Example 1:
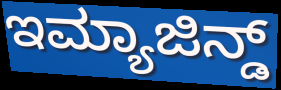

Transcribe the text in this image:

ಇಮ್ಯಾಜಿನ್ಡ್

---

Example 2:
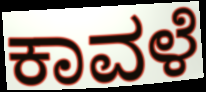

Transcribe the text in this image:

ಕಾವಳೆ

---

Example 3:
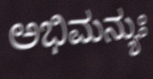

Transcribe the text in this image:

ಅಭಿಮನ್ಯುಃ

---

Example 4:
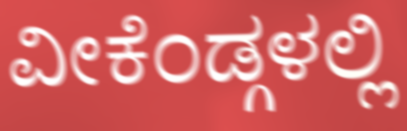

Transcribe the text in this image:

ವೀಕೆಂಡ್ಗಳಲ್ಲಿ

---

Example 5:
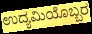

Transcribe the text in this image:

ಉದ್ಯಮಿಯೊಬ್ಬರ